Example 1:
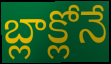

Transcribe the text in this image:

బ్లాక్లోనే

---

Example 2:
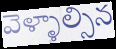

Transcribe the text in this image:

వెళ్ళాల్సిన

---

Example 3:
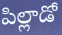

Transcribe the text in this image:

పిల్లాడో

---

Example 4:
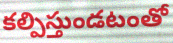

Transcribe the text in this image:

కల్పిస్తుండటంతో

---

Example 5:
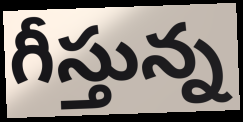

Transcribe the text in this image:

గీస్తున్న